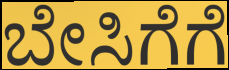
ಬೇಸಿಗೆಗೆ